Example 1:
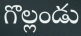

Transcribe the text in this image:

గొల్లండు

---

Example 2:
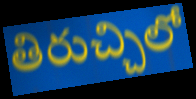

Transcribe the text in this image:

తిరుచ్చిలో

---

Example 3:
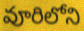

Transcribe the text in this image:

వూరిలోని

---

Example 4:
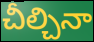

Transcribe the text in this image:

చీల్చినా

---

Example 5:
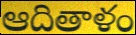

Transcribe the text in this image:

ఆదితాళం